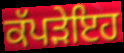
ਕੱਪੜੇਇਹ